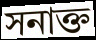
সনাক্ত